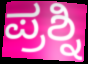
ಪ್ರಶ್ನಿ